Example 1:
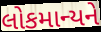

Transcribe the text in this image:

લોકમાન્યને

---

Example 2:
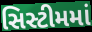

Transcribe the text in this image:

સિસ્ટીમમાં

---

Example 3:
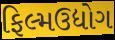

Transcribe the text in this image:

ફિલ્મઉદ્યોગ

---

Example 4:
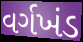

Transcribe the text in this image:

વર્ગખંડ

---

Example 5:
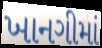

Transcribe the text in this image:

ખાનગીમાં